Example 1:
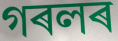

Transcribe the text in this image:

গৰলৰ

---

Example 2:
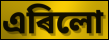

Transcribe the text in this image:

এৰিলো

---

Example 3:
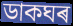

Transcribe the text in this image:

ডাকঘৰ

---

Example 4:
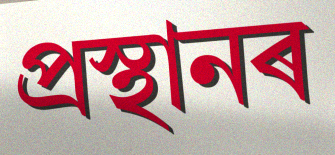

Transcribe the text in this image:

প্ৰস্থানৰ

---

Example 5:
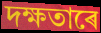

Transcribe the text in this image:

দক্ষতাৰে